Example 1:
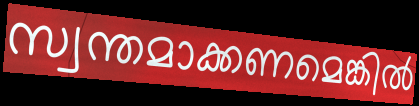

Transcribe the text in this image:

സ്വന്തമാക്കണമെങ്കിൽ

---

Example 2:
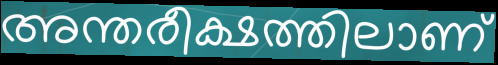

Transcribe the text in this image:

അന്തരീക്ഷത്തിലാണ്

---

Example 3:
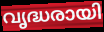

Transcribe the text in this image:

വൃദ്ധരായി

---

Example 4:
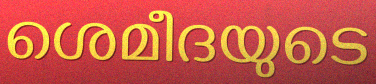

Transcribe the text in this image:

ശെമീദയുടെ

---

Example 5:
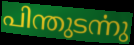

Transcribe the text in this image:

പിന്തുടൎന്നു